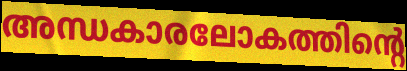
അന്ധകാരലോകത്തിന്റെ